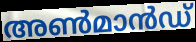
അൺമാൻഡ്